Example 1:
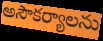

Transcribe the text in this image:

అసౌకర్యాలను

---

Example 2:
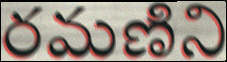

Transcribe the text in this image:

రమణిని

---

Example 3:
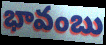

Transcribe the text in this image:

భావంబు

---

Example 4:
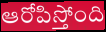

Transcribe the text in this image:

ఆరోపిస్తోంది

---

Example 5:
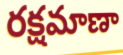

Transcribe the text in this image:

రక్షమాణా